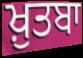
ਖ਼ੁਤਬਾ